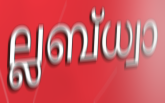
ല്ലബ്ധ്വാ